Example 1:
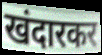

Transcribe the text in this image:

खंदारकर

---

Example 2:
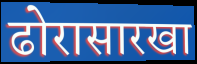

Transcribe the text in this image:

ढोरासारखा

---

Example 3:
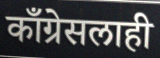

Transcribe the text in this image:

काँग्रेसलाही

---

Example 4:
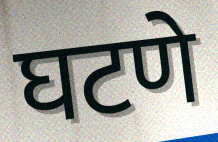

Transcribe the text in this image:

घटणे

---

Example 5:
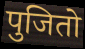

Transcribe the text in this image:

पुजितो